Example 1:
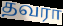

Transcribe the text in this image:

தவரா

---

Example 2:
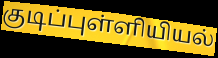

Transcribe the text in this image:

குடிப்புள்ளியியல்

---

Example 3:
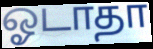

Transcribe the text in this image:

ஓடாதா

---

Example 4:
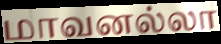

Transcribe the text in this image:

மாவனல்லா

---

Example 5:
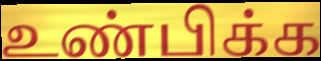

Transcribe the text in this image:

உண்பிக்க